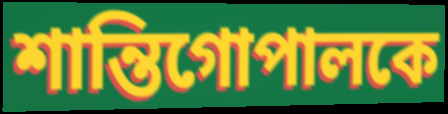
শান্তিগোপালকে